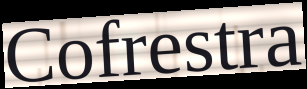
Cofrestra